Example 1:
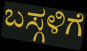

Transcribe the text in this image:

ಬಸ್ಗಳಿಗೆ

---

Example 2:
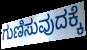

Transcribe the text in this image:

ಗುಣಿಸುವುದಕ್ಕೆ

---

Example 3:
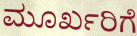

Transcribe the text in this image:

ಮೂರ್ಖರಿಗೆ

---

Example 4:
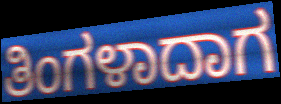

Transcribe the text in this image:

ತಿಂಗಳಾದಾಗ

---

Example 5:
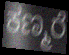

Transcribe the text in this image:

ಕಣ್ಮರೆ